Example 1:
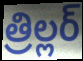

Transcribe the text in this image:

త్రిల్లర్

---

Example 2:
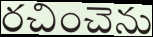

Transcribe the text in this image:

రచించెను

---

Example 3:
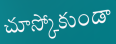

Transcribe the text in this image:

చూస్కోకుండా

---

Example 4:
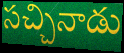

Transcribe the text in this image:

సచ్చినాడు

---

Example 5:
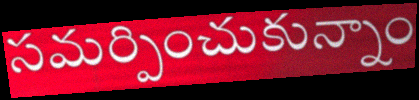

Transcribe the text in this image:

సమర్పించుకున్నాం